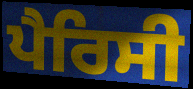
ਪੈਰਿਸੀ